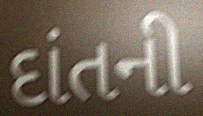
દાંતની